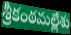
శ్రీకంఠమల్లేశు